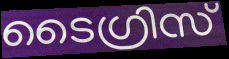
ടൈഗ്രിസ്